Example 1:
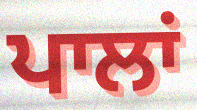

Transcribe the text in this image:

ਪਾਲਾਂ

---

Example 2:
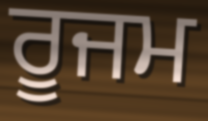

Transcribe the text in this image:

ਰੂਜਮ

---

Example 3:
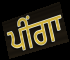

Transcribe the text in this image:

ਪੀਂਗਾ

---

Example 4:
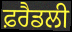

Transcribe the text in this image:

ਫ਼ਰੈਡਲੀ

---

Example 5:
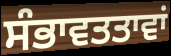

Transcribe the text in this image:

ਸੰਭਾਵਤਤਾਵਾਂ